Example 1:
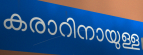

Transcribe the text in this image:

കരാറിനായുള്ള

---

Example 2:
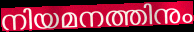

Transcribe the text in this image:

നിയമനത്തിനും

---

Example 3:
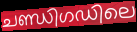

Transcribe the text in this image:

ചണ്ഡിഗഡിലെ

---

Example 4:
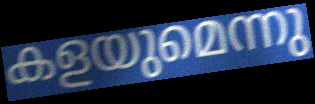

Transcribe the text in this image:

കളയുമെന്നു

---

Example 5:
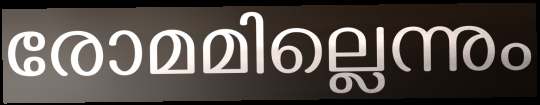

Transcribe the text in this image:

രോമമില്ലെന്നും